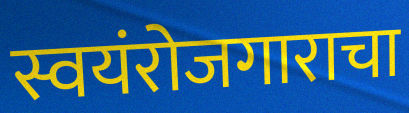
स्वयंरोजगाराचा